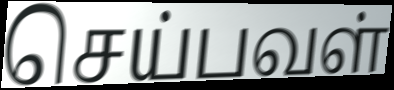
செய்பவள்